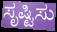
ಸೃಷ್ಟಿಸು